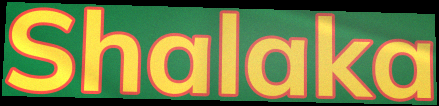
Shalaka